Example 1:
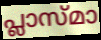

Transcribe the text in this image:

പ്ലാസ്മാ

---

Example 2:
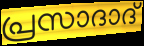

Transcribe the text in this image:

പ്രസാദാദ്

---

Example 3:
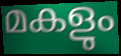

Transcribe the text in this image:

മകളും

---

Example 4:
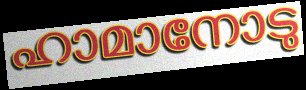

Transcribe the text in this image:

ഹാമാനോടു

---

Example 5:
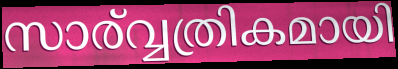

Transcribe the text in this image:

സാര്വ്വത്രികമായി